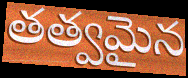
తత్వమైన